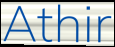
Athir